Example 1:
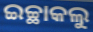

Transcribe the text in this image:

ଇଚ୍ଛାକଲୁ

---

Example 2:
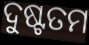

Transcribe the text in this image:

ଦୁଷ୍ଟତମ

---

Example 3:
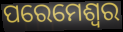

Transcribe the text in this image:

ପରେମେଶ୍ଵର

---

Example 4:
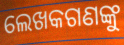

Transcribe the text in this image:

ଲେଖକଗଣଙ୍କୁ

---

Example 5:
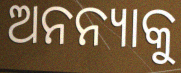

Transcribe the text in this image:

ଅନନ୍ୟାକୁ